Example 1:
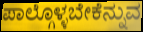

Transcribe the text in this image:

ಪಾಲ್ಗೊಳ್ಳಬೇಕೆನ್ನುವ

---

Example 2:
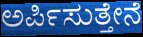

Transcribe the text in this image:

ಅರ್ಪಿಸುತ್ತೇನೆ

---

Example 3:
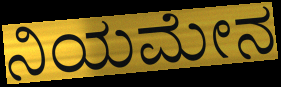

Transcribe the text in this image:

ನಿಯಮೇನ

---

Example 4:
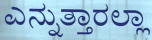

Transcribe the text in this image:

ಎನ್ನುತ್ತಾರಲ್ಲಾ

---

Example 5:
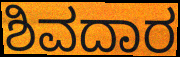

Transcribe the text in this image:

ಶಿವದಾರ